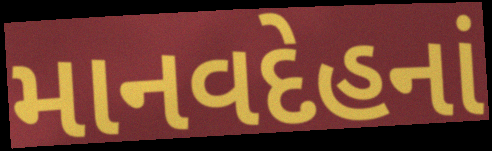
માનવદેહનાં